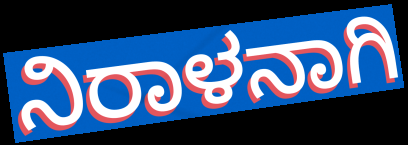
ನಿರಾಳನಾಗಿ